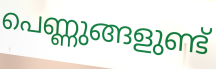
പെണ്ണുങ്ങളുണ്ട്